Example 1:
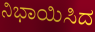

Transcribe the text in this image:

ನಿಭಾಯಿಸಿದ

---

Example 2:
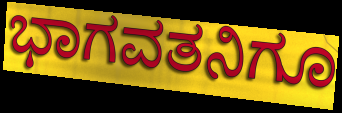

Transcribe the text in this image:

ಭಾಗವತನಿಗೂ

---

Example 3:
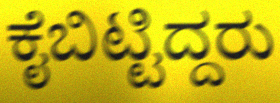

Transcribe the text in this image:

ಕೈಬಿಟ್ಟಿದ್ದರು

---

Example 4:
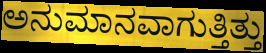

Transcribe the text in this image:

ಅನುಮಾನವಾಗುತ್ತಿತ್ತು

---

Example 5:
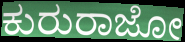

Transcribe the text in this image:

ಕುರುರಾಜೋ